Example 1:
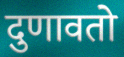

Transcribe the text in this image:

दुणावतो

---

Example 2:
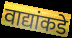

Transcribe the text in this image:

वाद्यांकडे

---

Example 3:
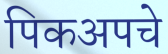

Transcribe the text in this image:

पिकअपचे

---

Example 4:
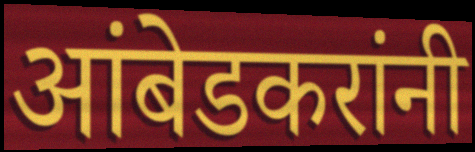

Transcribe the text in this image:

आंबेडकरांनी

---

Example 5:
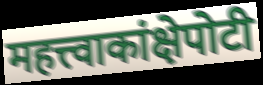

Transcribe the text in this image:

महत्त्वाकांक्षेपोटी